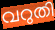
വറുതി